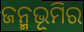
ଜନ୍ମଭୂମିର